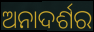
ଅନାଦର୍ଶର